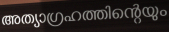
അത്യാഗ്രഹത്തിന്റെയും